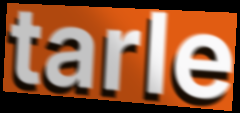
tarle